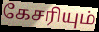
கேசரியும்